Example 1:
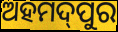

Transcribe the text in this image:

ଅହମଦ୍‌ପୁର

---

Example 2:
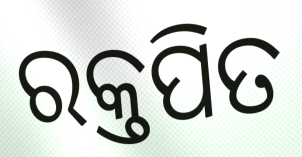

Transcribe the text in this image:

ରକ୍ତପିତ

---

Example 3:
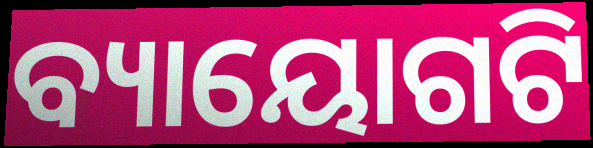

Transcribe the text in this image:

ବ୍ୟାୟୋଗଟି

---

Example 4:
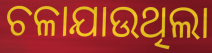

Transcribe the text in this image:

ଚଳାଯାଉଥିଲା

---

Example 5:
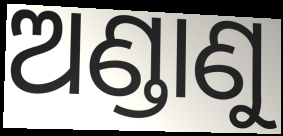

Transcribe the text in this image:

ଅଣ୍ଡାଣୁ